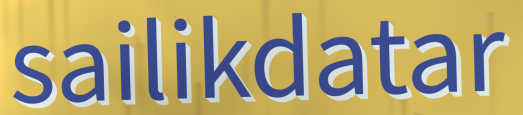
sailikdatar